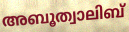
അബൂത്വാലിബ്